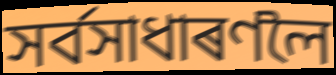
সৰ্বসাধাৰণলৈ